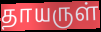
தாயருள்